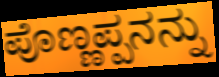
ಪೊಣ್ಣಪ್ಪನನ್ನು